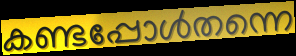
കണ്ടപ്പോൾതന്നെ